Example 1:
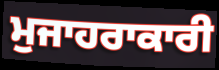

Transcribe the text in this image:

ਮੁਜਾਹਰਾਕਾਰੀ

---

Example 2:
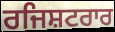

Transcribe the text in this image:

ਰਜਿਸ਼ਟਰਾਰ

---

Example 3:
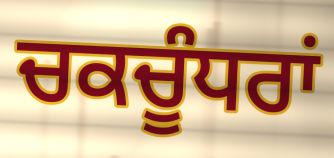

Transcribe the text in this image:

ਚਕਚੂੰਧਰਾਂ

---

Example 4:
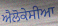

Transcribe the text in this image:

ਐਲੋਕੇਸੀਆ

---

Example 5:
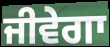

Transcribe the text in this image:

ਜੀਵੇਗਾ